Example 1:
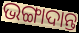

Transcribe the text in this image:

ଭଙ୍ଗାଦାନ୍ତ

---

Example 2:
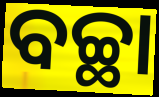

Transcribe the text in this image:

ବଚ୍ଛା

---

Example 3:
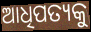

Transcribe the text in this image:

ଆଧିପତ୍ୟକୁ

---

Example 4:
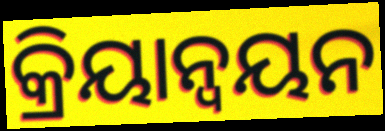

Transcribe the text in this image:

କ୍ରିୟାନ୍ଵୟନ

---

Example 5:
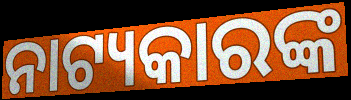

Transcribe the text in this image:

ନାଟ୍ୟକାରଙ୍କ